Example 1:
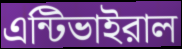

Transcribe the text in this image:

এন্টিভাইরাল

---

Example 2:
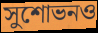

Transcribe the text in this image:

সুশোভনও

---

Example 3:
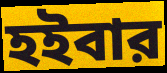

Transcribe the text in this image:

হইবার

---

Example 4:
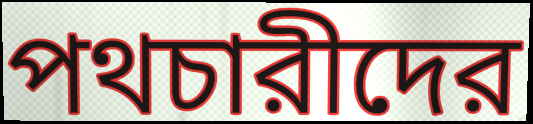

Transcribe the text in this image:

পথচারীদের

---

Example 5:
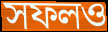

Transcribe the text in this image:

সফলও